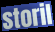
storil